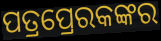
ପତ୍ରପ୍ରେରକଙ୍କର